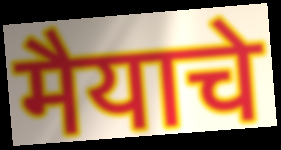
मैयाचे